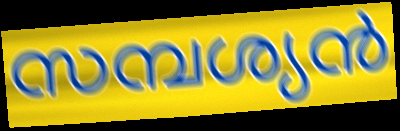
സമ്പശ്യൻ